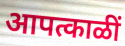
आपत्काळीं